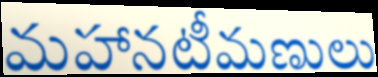
మహానటీమణులు